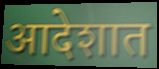
आदेशात